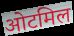
ओटमिल